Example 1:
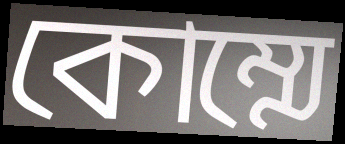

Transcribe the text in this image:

কোম্মে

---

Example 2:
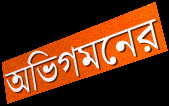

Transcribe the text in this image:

অভিগমনের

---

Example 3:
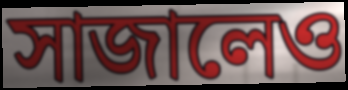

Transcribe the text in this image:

সাজালেও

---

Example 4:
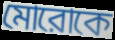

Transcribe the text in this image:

মোরোকে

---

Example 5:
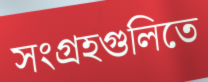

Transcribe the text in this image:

সংগ্রহগুলিতে